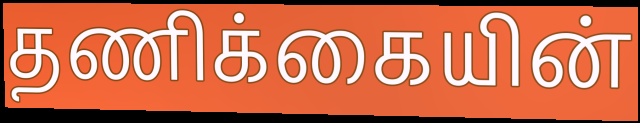
தணிக்கையின்